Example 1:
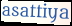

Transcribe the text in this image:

asattiya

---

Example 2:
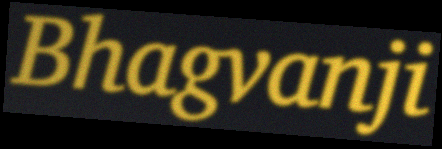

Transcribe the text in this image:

Bhagvanji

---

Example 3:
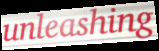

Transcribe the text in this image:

unleashing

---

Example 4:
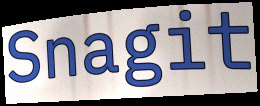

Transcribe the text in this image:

Snagit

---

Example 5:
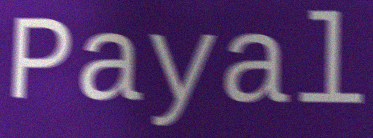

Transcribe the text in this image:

Payal